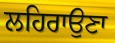
ਲਹਿਰਾਉਣਾ